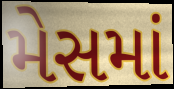
મેસમાં